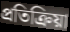
প্রতিক্রিয়া